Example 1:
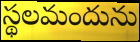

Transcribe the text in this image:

స్థలమందును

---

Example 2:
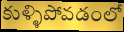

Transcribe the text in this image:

కుళ్ళిపోవడంలో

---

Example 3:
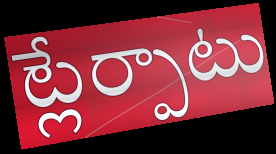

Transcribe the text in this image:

ట్లేర్పాటు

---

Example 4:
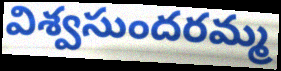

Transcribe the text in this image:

విశ్వసుందరమ్మ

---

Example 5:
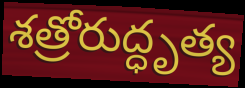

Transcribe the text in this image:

శత్రోరుద్ధృత్య